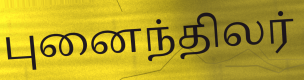
புனைந்திலர்